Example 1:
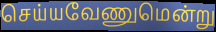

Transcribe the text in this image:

செய்யவேணுமென்று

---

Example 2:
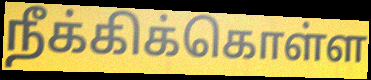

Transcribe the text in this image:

நீக்கிக்கொள்ள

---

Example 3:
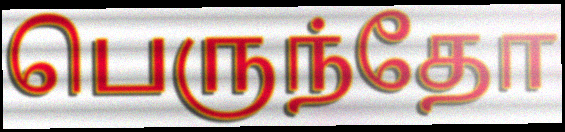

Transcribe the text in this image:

பெருந்தோ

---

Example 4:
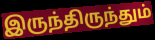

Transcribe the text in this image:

இருந்திருந்தும்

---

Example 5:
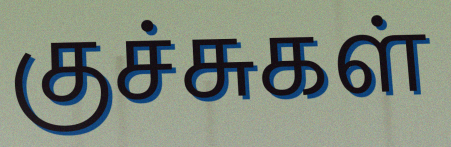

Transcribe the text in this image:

குச்சுகள்